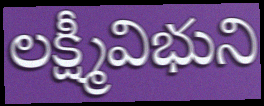
లక్ష్మీవిభుని